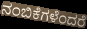
ನಂಬಿಕೆಗಳೆಂದರೆ